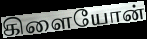
கிளையோன்